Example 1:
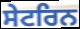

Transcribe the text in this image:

ਸੇਟਰਿਨ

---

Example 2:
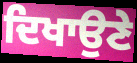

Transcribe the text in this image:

ਦਿਖਾਉਣੇ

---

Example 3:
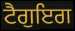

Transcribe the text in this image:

ਟੈਗੁਇਗ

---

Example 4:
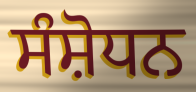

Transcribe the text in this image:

ਸੰਸ਼ੋਧਨ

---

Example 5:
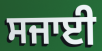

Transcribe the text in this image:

ਸਜਾਈ